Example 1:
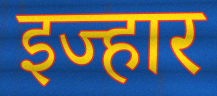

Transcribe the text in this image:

इज्हार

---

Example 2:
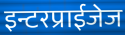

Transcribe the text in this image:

इन्टरप्राईजेज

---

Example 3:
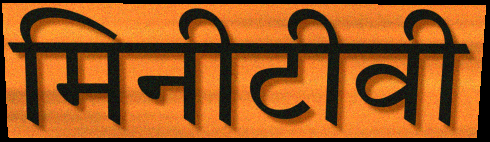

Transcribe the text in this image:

मिनीटीवी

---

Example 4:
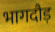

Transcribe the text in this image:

भागदौड़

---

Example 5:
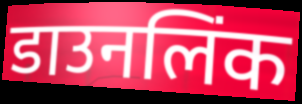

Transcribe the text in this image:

डाउनलिंक